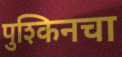
पुश्किनचा